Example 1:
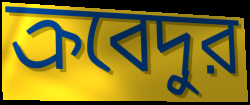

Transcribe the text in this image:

ক্রবেদুর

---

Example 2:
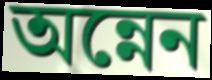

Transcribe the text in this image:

অন্নেন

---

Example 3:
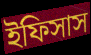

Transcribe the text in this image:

ইফিসাস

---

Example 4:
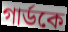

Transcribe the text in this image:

গার্ডকে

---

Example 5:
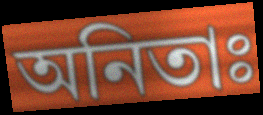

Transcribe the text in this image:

অনিতাঃ